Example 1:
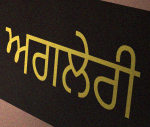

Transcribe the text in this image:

ਅਗਲੇਰੀ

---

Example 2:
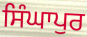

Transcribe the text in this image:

ਸਿੰਘਾਪੁਰ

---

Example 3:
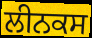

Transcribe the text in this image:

ਲੀਨਕਸ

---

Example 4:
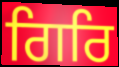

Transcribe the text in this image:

ਗਿਰਿ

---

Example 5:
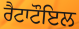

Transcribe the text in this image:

ਰੈਟਾਟੌਇਲ